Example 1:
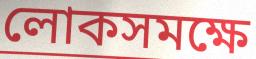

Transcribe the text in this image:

লোকসমক্ষে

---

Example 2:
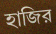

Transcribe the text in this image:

হাজির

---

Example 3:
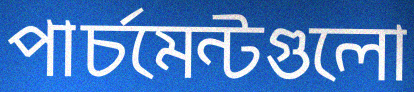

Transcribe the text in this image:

পার্চমেন্টগুলো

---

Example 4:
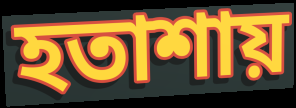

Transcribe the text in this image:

হতাশায়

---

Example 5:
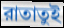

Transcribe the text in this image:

রাতাতুই